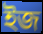
ইজ